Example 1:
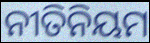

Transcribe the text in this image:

ନୀତିନିୟମ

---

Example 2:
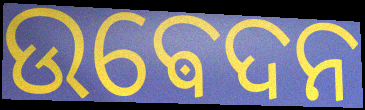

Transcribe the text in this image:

ଉଵେଦନ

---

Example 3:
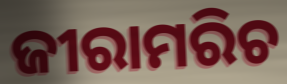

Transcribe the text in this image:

ଜୀରାମରିଚ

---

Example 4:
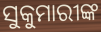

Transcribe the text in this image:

ସୁକୁମାରୀଙ୍କ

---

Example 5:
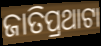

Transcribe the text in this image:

ଜାତିପ୍ରଥାଟା